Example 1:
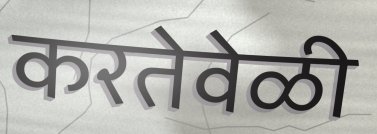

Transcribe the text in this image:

करतेवेळी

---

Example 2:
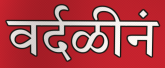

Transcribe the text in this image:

वर्दळीनं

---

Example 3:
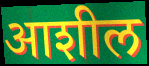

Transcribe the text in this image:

आशील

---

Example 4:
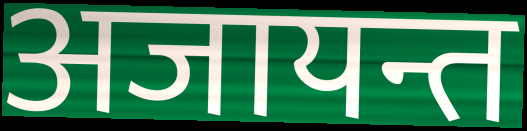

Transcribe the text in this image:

अजायन्त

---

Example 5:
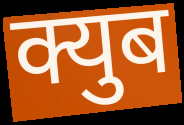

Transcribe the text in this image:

क्युब